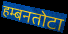
हम्बनतोटा